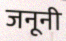
जनूनी